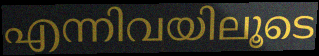
എന്നിവയിലൂടെ